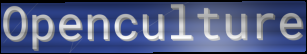
Openculture